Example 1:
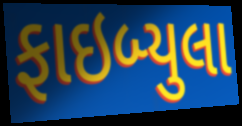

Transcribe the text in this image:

ફાઇબ્યુલા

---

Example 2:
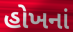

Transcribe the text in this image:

હોખનાં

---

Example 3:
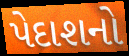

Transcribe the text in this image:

પેદાશનો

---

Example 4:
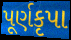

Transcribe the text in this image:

પૂર્ણકૃપા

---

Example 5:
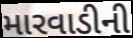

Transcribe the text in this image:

મારવાડીની